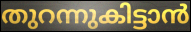
തുറന്നുകിട്ടാൻ